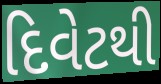
દિવેટથી